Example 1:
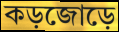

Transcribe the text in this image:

কড়জোড়ে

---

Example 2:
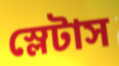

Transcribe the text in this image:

স্লেটাস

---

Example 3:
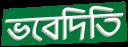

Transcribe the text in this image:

ভবেদিতি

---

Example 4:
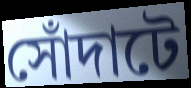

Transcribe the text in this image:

সোঁদাটে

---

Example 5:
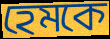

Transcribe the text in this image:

হেমকে